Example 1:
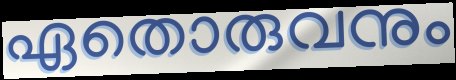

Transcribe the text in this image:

ഏതൊരുവനും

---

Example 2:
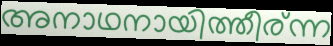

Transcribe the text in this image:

അനാഥനായിത്തീര്ന്ന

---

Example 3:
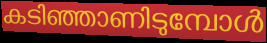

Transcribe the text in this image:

കടിഞ്ഞാണിടുമ്പോൾ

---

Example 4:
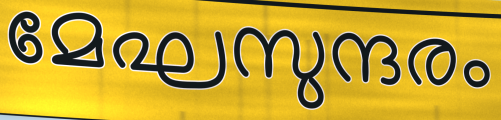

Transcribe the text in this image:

മേഘസുന്ദരം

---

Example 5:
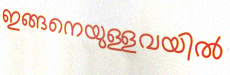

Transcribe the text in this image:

ഇങ്ങനെയുള്ളവയിൽ